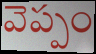
వెప్పం